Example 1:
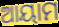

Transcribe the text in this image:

ଆୟାମ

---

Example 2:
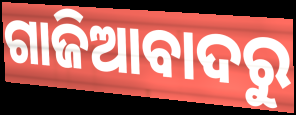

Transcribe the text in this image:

ଗାଜିଆବାଦରୁ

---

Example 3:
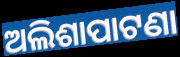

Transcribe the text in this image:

ଅଲିଶାପାଟଣା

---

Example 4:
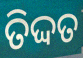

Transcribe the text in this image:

ତିଦ୍ଦତ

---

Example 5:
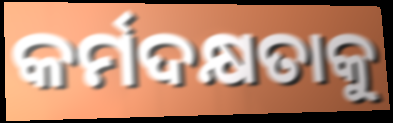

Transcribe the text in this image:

କର୍ମଦକ୍ଷତାକୁ